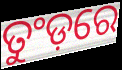
ତୁଂଡ଼ରେ